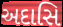
અદાસિ